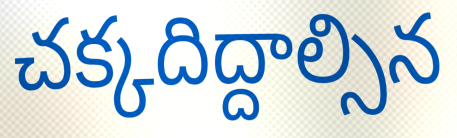
చక్కదిద్దాల్సిన